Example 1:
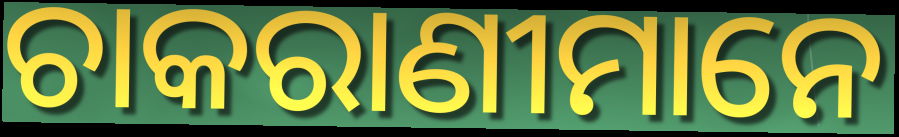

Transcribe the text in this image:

ଚାକରାଣୀମାନେ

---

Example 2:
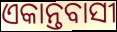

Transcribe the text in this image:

ଏକାନ୍ତବାସୀ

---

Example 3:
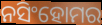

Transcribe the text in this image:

ନସିଂହୋମର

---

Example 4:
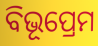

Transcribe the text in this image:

ବିଭୂପ୍ରେମ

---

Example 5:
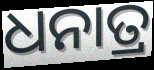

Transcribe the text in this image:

ଧନାତ୍ର